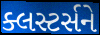
ક્લસ્ટર્સને